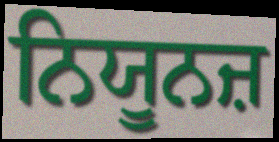
ਨਿਯੂਨਜ਼